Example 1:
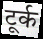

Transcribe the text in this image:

टूर्क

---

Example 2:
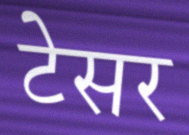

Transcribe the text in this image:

टेसर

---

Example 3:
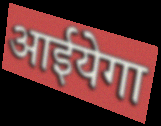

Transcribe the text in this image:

आईयेगा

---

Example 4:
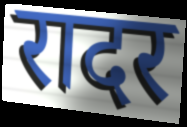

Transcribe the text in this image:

रादर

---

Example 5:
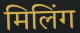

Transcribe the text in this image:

मिलिंग